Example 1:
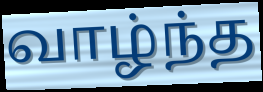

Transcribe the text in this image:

வாழ்ந்த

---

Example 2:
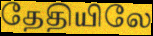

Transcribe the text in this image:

தேதியிலே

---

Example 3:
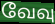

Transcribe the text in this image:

வேவு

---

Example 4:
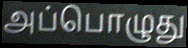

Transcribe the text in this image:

அப்பொழுது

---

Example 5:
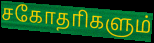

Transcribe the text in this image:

சகோதரிகளும்